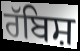
ਰੱਬਿਸ਼